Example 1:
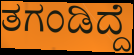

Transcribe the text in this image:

ತಗಂಡಿದ್ದೆ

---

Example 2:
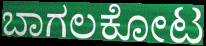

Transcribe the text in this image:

ಬಾಗಲಕೋಟ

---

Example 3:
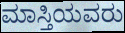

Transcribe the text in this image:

ಮಾಸ್ತಿಯವರು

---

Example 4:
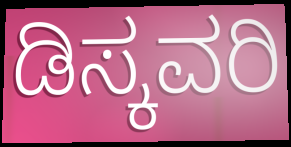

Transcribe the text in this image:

ಡಿಸ್ಕವರಿ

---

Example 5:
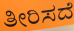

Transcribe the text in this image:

ತೀರಿಸದೆ